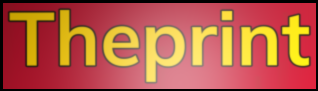
Theprint